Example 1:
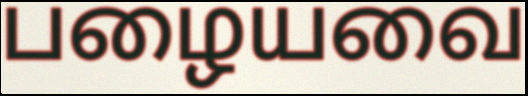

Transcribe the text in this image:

பழையவை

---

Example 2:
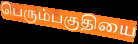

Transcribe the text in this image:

பெரும்பகுதியை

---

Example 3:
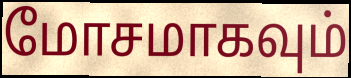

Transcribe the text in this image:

மோசமாகவும்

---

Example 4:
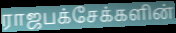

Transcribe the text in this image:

ராஜபக்சேக்களின்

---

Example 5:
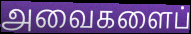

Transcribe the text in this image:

அவைகளைப்